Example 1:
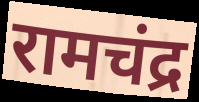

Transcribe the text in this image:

रामचंद्र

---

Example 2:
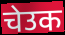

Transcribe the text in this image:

चेउक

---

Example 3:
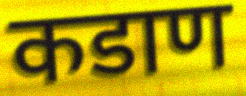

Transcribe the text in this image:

कडाण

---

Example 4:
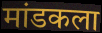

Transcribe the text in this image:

मांडकला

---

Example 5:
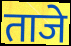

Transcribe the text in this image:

ताजे